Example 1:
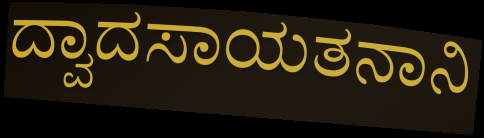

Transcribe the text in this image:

ದ್ವಾದಸಾಯತನಾನಿ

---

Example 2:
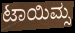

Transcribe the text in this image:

ಟಾಯಿಮ್ಸ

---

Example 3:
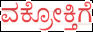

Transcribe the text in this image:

ವಕ್ರೋಕ್ತಿಗೆ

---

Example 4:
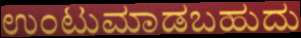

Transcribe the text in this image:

ಉಂಟುಮಾಡಬಹುದು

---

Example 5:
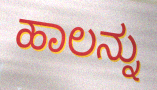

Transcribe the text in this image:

ಹಾಲನ್ನು